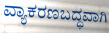
ವ್ಯಾಕರಣಬದ್ಧವಾಗಿ